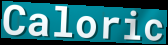
Caloric